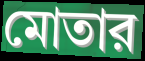
মোতার